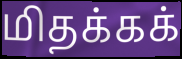
மிதக்கக்